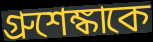
গ্রুশেঙ্কাকে